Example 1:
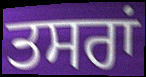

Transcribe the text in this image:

ਤਸਰਾਂ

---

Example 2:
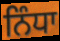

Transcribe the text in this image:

ਨਿੰਧਾ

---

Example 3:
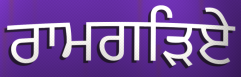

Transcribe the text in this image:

ਰਾਮਗੜਿਏ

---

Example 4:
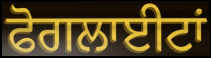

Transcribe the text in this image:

ਫੋਗਲਾਈਟਾਂ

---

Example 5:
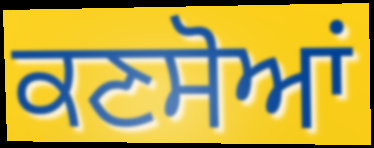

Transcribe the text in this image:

ਕਣਸੋਆਂ